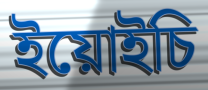
ইয়োইচি